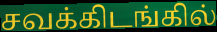
சவக்கிடங்கில்